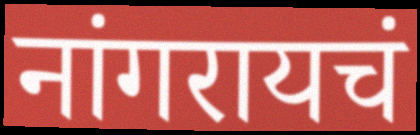
नांगरायचं